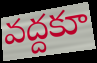
వద్దకూ